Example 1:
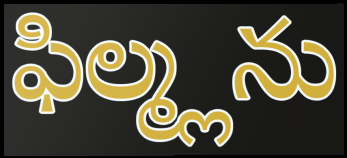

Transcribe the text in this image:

ఫిల్మ్లను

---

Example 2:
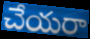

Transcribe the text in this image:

చేయరా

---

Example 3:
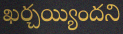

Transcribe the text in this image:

ఖర్చయ్యిందని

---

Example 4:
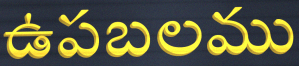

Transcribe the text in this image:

ఉపబలము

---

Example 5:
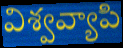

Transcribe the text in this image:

విశ్వవ్యాపి